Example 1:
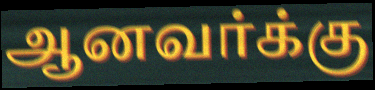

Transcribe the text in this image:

ஆனவர்க்கு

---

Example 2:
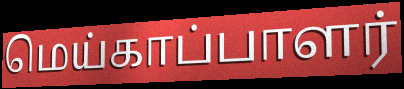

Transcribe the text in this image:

மெய்காப்பாளர்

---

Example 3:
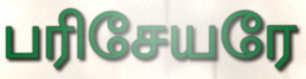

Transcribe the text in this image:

பரிசேயரே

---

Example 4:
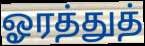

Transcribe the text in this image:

ஓரத்துத்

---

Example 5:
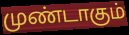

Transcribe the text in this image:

முண்டாகும்